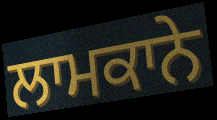
ਲਾਮਕਾਨੇ